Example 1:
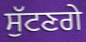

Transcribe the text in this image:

ਸੁੱਟਣਗੇ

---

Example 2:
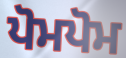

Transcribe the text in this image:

ਪੋਮਪੋਮ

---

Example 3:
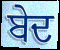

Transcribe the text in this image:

ਬੇਦ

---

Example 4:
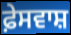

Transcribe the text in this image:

ਫ਼ੇਸਵਾਸ਼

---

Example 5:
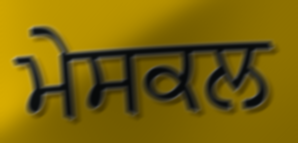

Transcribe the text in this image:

ਮੇਸਕਲ